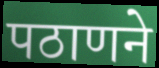
पठाणने